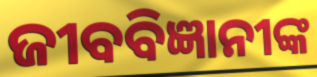
ଜୀବବିଜ୍ଞାନୀଙ୍କ